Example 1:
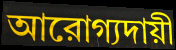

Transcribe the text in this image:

আরোগ্যদায়ী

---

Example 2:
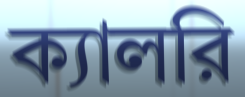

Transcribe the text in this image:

ক্যালরি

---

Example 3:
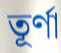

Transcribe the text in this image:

তূর্ণা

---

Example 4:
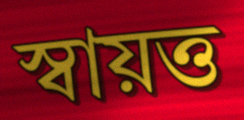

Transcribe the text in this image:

স্বায়ত্ত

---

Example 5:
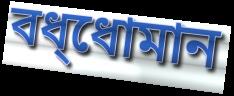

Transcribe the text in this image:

বধ্ধোমান